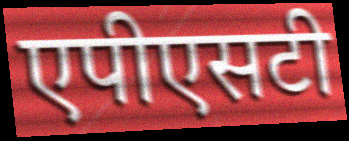
एपीएसटी